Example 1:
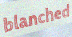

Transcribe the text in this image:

blanched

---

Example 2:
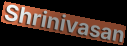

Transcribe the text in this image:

Shrinivasan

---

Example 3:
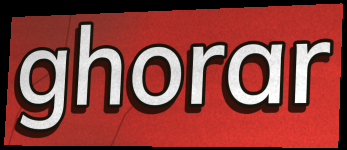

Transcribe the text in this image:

ghorar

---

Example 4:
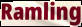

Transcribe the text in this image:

Ramling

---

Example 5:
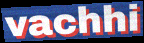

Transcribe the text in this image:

vachhi